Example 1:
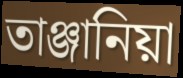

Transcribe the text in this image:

তাঞ্জানিয়া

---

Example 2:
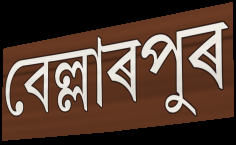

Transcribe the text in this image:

বেল্লাৰপুৰ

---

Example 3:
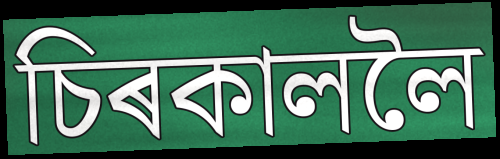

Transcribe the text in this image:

চিৰকাললৈ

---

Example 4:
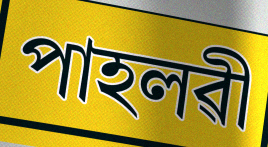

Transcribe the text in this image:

পাহলৱী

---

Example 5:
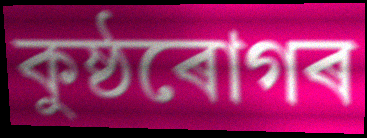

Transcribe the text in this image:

কুষ্ঠৰোগৰ